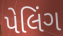
પેલિંગ